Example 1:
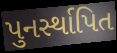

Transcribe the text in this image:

પુનર્સ્થાપિત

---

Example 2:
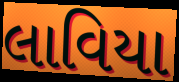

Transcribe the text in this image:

લાવિયા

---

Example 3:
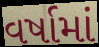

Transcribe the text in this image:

વર્ષામાં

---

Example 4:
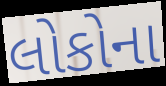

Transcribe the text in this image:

લોકોના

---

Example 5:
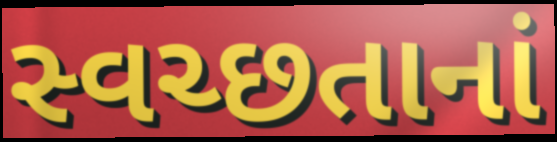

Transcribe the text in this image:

સ્વચ્છતાનાં